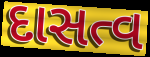
દાસત્વ